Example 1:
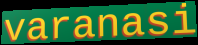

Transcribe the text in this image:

varanasi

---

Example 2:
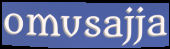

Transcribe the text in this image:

omusajja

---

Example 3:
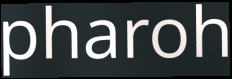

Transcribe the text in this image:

pharoh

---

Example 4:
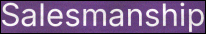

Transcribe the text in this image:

Salesmanship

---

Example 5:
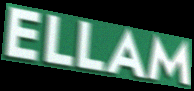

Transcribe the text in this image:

ELLAM